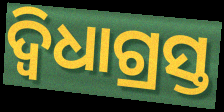
ଦ୍ୱିଧାଗ୍ରସ୍ତ